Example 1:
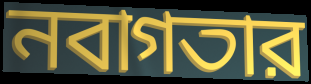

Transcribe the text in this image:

নবাগতার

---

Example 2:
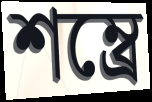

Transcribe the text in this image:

শম্ব্রে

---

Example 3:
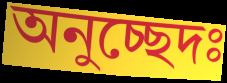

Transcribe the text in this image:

অনুচ্ছেদঃ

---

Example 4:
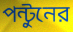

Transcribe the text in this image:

পন্টুনের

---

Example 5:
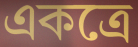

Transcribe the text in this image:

একত্রে